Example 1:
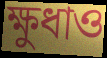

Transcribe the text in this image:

ক্ষুধাও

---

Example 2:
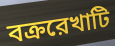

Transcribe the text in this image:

বক্ররেখাটি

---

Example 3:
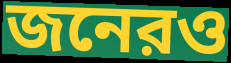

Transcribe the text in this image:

জনেরও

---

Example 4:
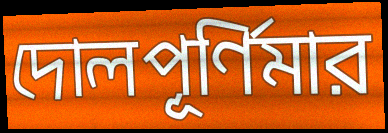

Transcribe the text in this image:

দোলপূর্ণিমার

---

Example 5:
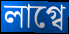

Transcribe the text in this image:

লাগ্বে